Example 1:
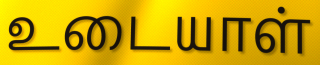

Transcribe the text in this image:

உடையாள்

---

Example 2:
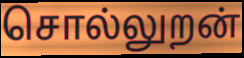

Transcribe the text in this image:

சொல்லுறன்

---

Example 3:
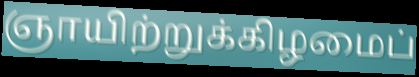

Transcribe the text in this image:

ஞாயிற்றுக்கிழமைப்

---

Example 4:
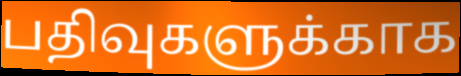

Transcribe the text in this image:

பதிவுகளுக்காக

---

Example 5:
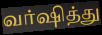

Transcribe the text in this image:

வர்ஷித்து